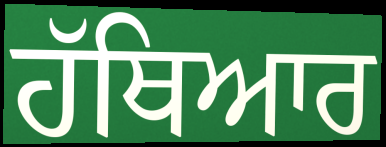
ਹੱਥਿਆਰ